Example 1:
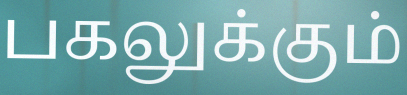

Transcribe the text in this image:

பகலுக்கும்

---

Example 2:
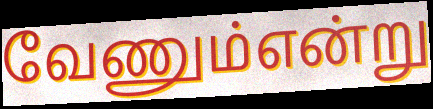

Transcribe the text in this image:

வேணும்என்று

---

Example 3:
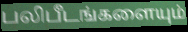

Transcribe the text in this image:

பலிபீடங்களையும்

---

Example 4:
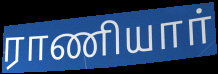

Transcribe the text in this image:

ராணியார்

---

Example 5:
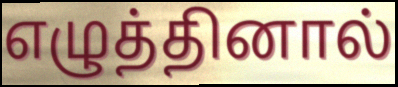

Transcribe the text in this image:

எழுத்தினால்